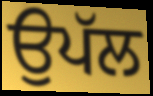
ਉਪੱਲ